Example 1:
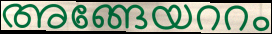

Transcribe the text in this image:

അങ്ങേയററം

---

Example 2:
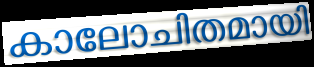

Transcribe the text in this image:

കാലോചിതമായി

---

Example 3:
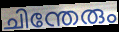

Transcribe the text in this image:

ചിന്തേരും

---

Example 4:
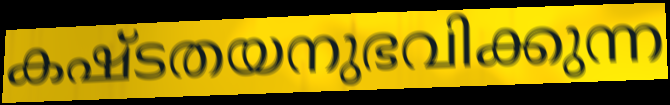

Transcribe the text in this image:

കഷ്ടതയനുഭവിക്കുന്ന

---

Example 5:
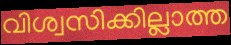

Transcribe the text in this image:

വിശ്വസിക്കില്ലാത്ത